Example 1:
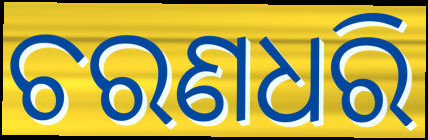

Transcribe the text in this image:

ଚରଣଧରି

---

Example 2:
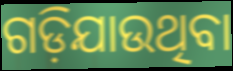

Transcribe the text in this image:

ଗଡ଼ିଯାଉଥିବା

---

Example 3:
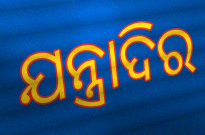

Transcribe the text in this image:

ଯନ୍ତ୍ରାଦିର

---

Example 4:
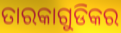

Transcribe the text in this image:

ତାରକାଗୁଡିକର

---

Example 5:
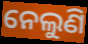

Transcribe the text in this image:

ନେଲୁଣି